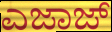
ಎಜಾಜ್